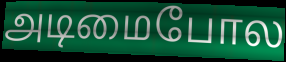
அடிமைபோல